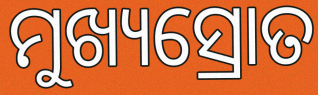
ମୁଖ୍ୟସ୍ରୋତ